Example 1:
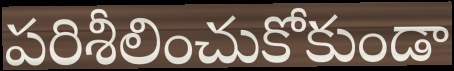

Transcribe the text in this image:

పరిశీలించుకోకుండా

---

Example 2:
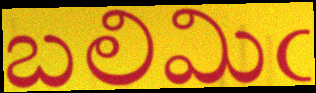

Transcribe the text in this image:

బలిమిఁ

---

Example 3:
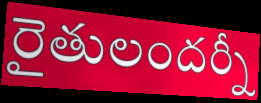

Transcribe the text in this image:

రైతులందర్నీ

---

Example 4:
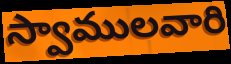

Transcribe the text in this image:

స్వాములవారి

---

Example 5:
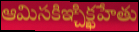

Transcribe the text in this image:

ఆమిసకిఞ్చిక్ఖహేతు